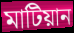
মাটিয়ান